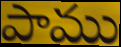
పాము